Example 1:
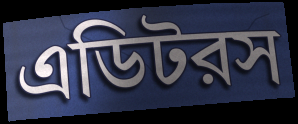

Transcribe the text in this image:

এডিটরস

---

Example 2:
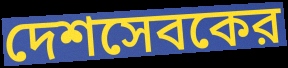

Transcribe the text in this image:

দেশসেবকের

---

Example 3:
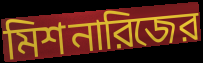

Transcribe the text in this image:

মিশনারিজের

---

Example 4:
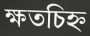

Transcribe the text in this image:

ক্ষতচিহ্ন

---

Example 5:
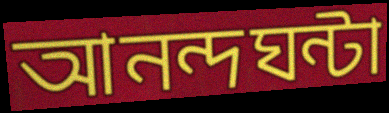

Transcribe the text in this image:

আনন্দঘন্টা